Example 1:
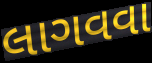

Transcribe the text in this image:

લાગવવા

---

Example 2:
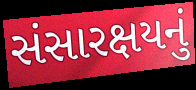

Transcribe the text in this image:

સંસારક્ષયનું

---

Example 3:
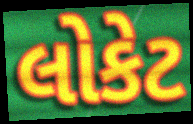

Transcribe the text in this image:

લોકેટ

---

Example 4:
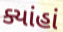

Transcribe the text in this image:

ક્યાંહાં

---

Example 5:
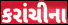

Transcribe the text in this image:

કરાંચીના